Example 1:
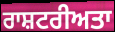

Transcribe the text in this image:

ਰਾਸ਼ਟਰੀਅਤਾ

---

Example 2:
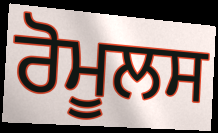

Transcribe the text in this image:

ਰੋਮੂਲਸ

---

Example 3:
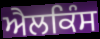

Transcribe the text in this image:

ਐਲਕਿੰਸ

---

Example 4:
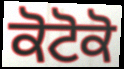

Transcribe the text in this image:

ਕੋਟੋਕੋ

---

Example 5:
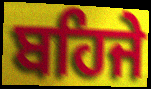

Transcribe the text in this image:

ਬਹਿਜੇ